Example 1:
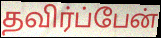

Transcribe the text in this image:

தவிர்ப்பேன்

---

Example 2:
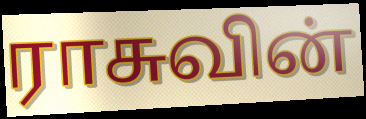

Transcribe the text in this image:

ராசுவின்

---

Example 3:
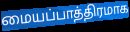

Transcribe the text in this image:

மையப்பாத்திரமாக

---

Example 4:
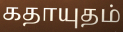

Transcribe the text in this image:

கதாயுதம்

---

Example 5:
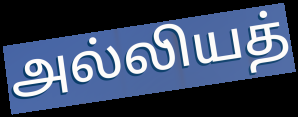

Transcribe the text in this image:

அல்லியத்